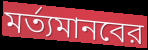
মর্ত্যমানবের